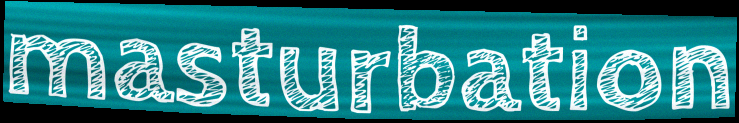
masturbation